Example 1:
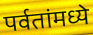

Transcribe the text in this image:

पर्वतांमध्ये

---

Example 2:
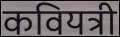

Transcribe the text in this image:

कवियत्री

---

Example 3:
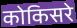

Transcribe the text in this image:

कोकिसरे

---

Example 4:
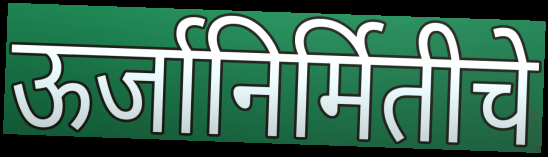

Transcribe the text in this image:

ऊर्जानिर्मितीचे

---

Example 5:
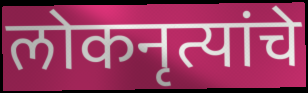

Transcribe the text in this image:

लोकनृत्यांचे